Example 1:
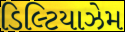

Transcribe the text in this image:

ડિલ્ટિયાઝેમ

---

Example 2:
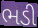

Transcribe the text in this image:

ભડી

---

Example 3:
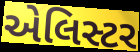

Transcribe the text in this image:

એલિસ્ટર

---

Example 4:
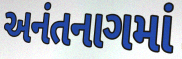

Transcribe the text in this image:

અનંતનાગમાં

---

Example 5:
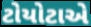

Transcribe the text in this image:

ટોયોટાએ